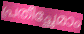
പ്രതീച്ഛേമാം